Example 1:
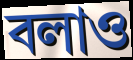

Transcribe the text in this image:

বলাও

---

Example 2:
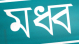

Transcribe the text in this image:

মধ্ব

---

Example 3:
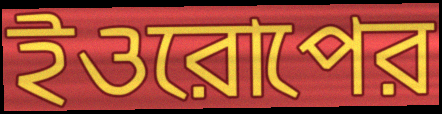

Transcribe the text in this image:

ইওরোপের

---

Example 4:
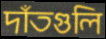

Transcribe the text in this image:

দাঁতগুলি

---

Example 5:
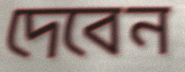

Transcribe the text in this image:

দেবেন